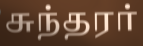
சுந்தரர்